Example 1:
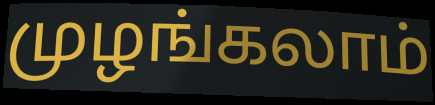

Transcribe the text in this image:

முழங்கலாம்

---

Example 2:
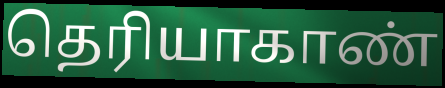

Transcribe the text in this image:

தெரியாகாண்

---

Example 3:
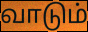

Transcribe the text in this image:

வாடும்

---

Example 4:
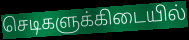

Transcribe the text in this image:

செடிகளுக்கிடையில்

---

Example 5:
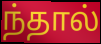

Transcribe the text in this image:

ந்தால்